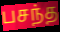
பசந்த